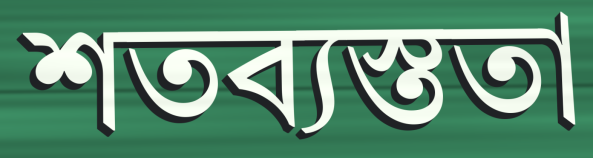
শতব্যস্ততা